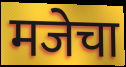
मजेचा